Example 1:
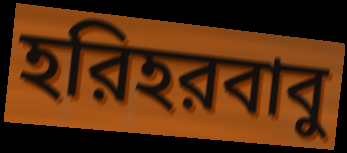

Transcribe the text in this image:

হরিহরবাবু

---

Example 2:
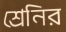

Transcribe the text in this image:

শ্রেনির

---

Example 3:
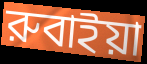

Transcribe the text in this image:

রুবাইয়া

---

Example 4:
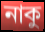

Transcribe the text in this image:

নাকু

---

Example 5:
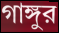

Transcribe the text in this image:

গাঙ্গুর